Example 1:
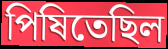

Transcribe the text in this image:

পিষিতেছিল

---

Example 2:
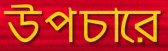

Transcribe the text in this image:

উপচারে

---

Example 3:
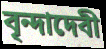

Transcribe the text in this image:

বৃন্দাদেবী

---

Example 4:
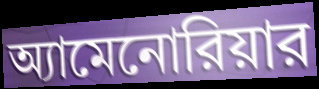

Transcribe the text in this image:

অ্যামেনোরিয়ার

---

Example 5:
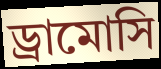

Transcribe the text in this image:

ড্রামোসি